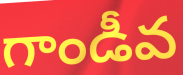
గాండీవ